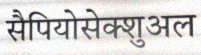
सैपियोसेक्शुअल